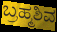
ಬ್ರಹ್ಮಶಿವ